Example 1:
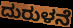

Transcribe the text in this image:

ದುರುಳನೆ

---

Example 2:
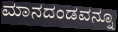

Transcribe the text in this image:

ಮಾನದಂಡವನ್ನೂ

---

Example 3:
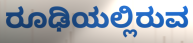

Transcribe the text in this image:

ರೂಢಿಯಲ್ಲಿರುವ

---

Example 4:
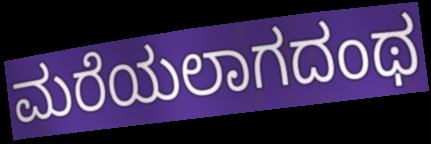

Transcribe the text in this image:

ಮರೆಯಲಾಗದಂಥ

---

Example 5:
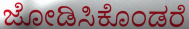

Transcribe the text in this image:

ಜೋಡಿಸಿಕೊಂಡರೆ